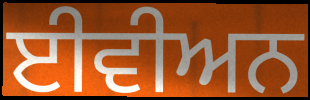
ਈਵੀਅਨ